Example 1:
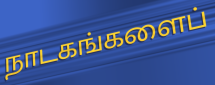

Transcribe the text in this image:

நாடகங்களைப்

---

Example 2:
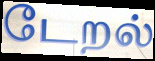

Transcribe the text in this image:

டேறல்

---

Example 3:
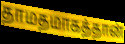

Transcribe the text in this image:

தாமதமாகத்தான்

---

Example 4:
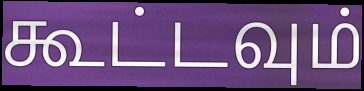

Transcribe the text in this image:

கூட்டவும்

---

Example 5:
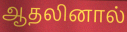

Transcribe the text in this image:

ஆதலினால்